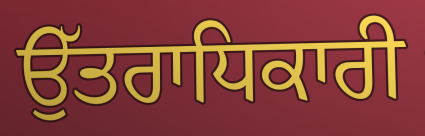
ਉੱਤਰਾਧਿਕਾਰੀ